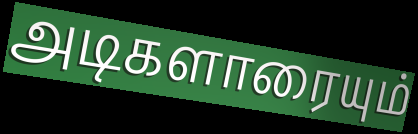
அடிகளாரையும்